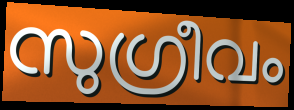
സുഗ്രീവം